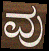
ವು